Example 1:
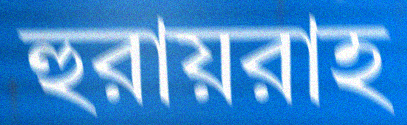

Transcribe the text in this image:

হুরায়রাহ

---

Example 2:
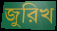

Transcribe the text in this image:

জুরিখ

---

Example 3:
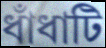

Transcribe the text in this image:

ধাঁধাটি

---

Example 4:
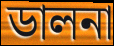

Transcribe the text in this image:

ডালনা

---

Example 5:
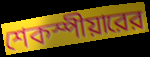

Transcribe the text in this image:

শেকস্পীয়ারের